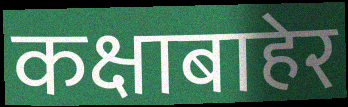
कक्षाबाहेर